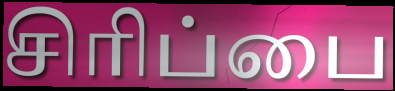
சிரிப்பை